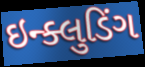
ઇન્ક્લુડિંગ